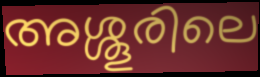
അശ്ശൂരിലെ